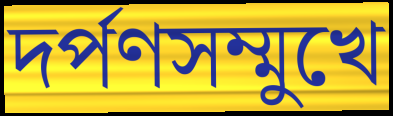
দর্পণসম্মুখে